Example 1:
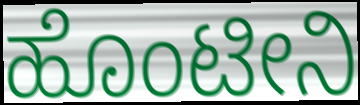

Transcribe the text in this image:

ಹೊಂಟೀನಿ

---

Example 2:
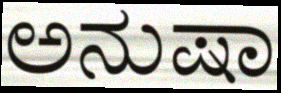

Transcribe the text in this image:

ಅನುಷಾ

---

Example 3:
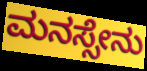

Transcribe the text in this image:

ಮನಸ್ಸೇನು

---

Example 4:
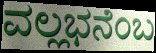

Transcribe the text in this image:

ವಲ್ಲಭನೆಂಬ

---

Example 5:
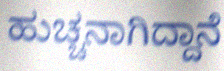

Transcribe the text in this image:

ಹುಚ್ಚನಾಗಿದ್ದಾನೆ